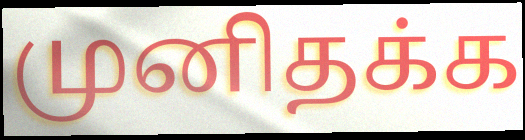
முனிதக்க